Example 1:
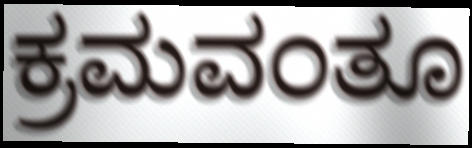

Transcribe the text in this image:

ಕ್ರಮವಂತೂ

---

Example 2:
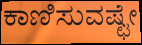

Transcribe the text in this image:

ಕಾಣಿಸುವಷ್ಟೇ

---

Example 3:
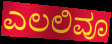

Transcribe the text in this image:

ಎಲಲಿವೂ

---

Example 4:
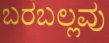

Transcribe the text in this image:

ಬರಬಲ್ಲವು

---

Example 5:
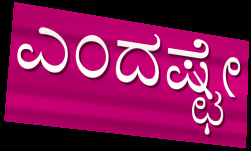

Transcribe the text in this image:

ಎಂದಷ್ಟೇ